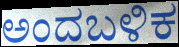
ಅಂದಬಳಿಕ